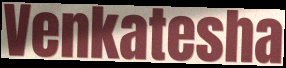
Venkatesha